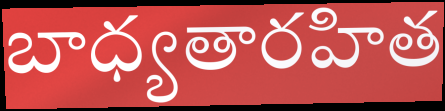
బాధ్యతారహిత